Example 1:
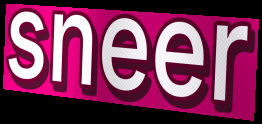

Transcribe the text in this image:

sneer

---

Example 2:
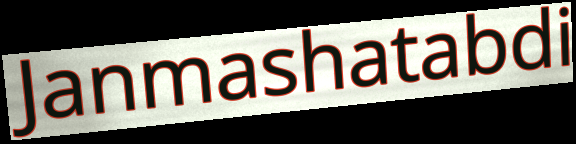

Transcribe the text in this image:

Janmashatabdi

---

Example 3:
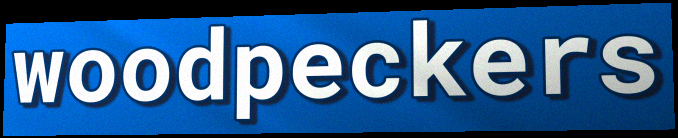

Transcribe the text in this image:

woodpeckers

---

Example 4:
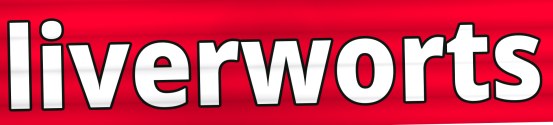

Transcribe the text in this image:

liverworts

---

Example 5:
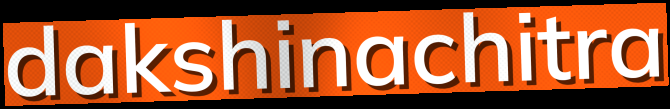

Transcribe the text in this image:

dakshinachitra